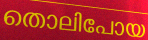
തൊലിപോയ